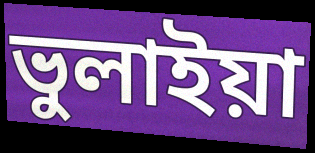
ভুলাইয়া